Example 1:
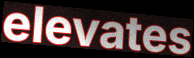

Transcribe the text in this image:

elevates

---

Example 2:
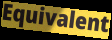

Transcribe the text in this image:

Equivalent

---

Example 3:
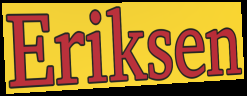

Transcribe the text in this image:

Eriksen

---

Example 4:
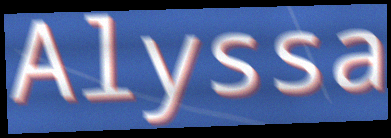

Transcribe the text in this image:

Alyssa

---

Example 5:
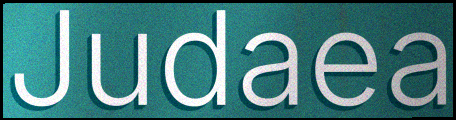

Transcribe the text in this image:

Judaea